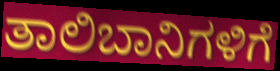
ತಾಲಿಬಾನಿಗಳಿಗೆ